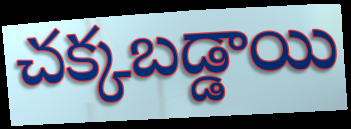
చక్కబడ్డాయి